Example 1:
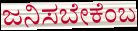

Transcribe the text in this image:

ಜನಿಸಬೇಕೆಂಬ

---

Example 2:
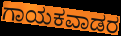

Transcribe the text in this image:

ಗಾಯಕವಾಡರ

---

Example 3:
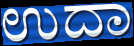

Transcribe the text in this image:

ಉದಾ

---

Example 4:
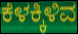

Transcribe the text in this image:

ಕೆಳಕ್ಕಿಳಿವ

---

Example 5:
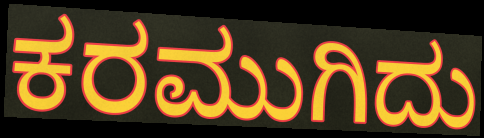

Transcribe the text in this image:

ಕರಮುಗಿದು